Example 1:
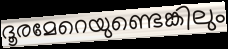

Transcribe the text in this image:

ദൂരമേറെയുണ്ടെങ്കിലും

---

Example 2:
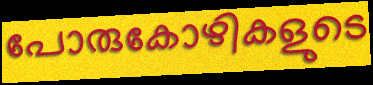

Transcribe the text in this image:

പോരുകോഴികളുടെ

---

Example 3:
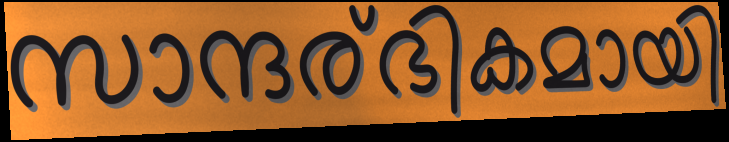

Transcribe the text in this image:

സാന്ദര്ഭികമായി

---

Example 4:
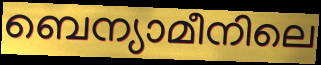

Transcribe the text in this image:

ബെന്യാമീനിലെ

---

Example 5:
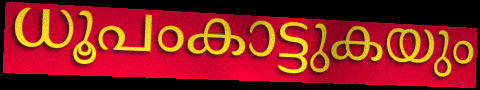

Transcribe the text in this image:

ധൂപംകാട്ടുകയും